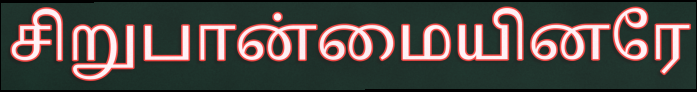
சிறுபான்மையினரே